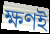
ক্ষণই